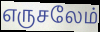
எருசலேம்